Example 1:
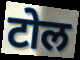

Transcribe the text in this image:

टोल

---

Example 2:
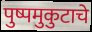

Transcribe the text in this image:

पुष्पमुकुटाचे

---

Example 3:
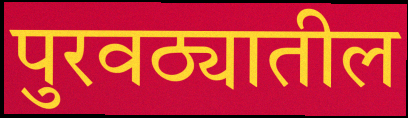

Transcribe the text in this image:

पुरवठ्यातील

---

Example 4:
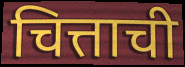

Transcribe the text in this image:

चित्ताची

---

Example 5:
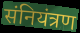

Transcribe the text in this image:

संनियंत्रण